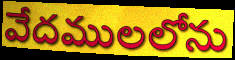
వేదములలోను